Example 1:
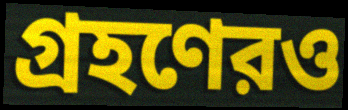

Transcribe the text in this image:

গ্রহণেরও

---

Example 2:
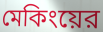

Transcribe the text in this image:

মেকিংয়ের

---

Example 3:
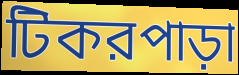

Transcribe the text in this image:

টিকরপাড়া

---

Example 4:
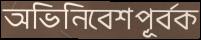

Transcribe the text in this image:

অভিনিবেশপূর্বক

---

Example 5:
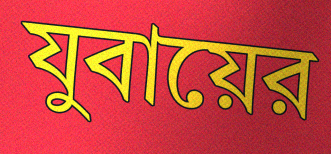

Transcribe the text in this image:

যুবায়ের